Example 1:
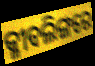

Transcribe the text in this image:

କ୍ଳୀବଲିଙ୍ଗରେ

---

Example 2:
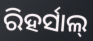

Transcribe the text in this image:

ରିହର୍ସାଲ୍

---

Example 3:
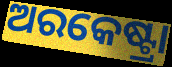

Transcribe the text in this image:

ଅରକେଷ୍ଟ୍ରା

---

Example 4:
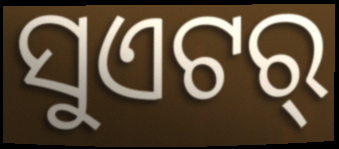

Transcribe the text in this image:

ସୁଏଟର୍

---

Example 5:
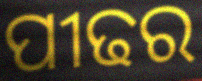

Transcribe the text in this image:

ପୀଢର